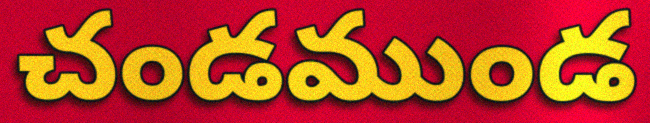
చండముండ